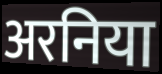
अरनिया